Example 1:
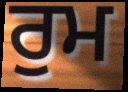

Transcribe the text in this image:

ਰੁਮ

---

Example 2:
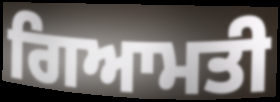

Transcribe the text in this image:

ਗਿਆਮਤੀ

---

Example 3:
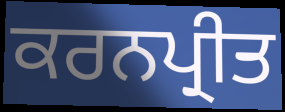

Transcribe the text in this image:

ਕਰਨਪ੍ਰੀਤ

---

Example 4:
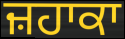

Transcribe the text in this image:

ਜ਼ਹਾਕਾ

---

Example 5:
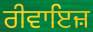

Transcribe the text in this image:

ਰੀਵਾਇਜ਼